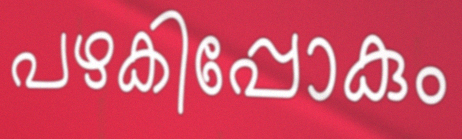
പഴകിപ്പോകും